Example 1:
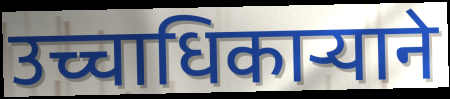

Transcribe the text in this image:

उच्चाधिकाऱ्याने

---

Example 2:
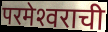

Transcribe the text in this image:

परमेश्वराची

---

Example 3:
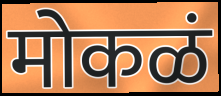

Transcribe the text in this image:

मोकळं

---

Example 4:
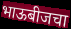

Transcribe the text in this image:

भाऊबीजचा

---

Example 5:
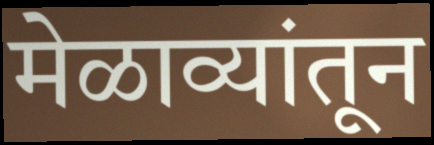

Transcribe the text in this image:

मेळाव्यांतून